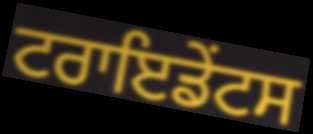
ਟਰਾਇਡੇਂਟਸ